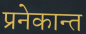
प्रनेकान्त